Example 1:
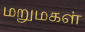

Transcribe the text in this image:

மறுமகள்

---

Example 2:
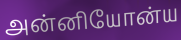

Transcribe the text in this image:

அன்னியோன்ய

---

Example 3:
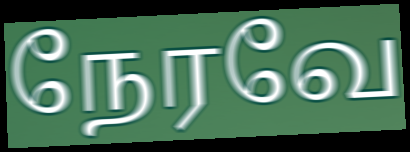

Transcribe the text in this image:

நேரவே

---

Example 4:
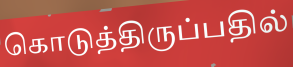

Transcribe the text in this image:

கொடுத்திருப்பதில்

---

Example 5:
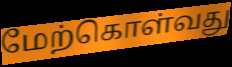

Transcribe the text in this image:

மேற்கொள்வது